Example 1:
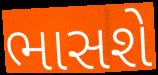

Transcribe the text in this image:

ભાસશે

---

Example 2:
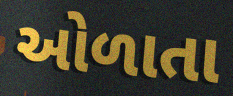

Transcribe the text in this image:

ઓળાતા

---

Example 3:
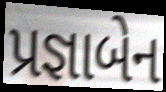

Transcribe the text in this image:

પ્રજ્ઞાબેન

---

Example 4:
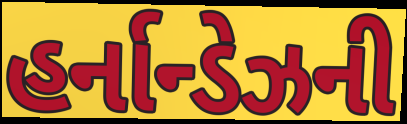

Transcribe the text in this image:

હર્નાન્ડેઝની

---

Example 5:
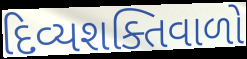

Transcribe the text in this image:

દિવ્યશક્તિવાળો